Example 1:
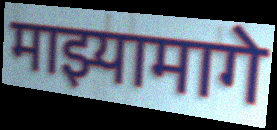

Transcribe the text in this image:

माझ्यामागे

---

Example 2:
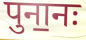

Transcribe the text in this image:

पुना॒नः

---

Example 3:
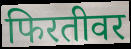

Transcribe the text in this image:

फिरतीवर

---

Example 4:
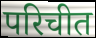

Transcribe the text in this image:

परिचीत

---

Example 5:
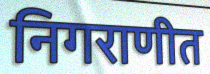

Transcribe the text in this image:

निगराणीत